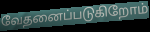
வேதனைப்படுகிறோம்